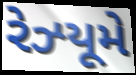
રેઝ્યૂમે